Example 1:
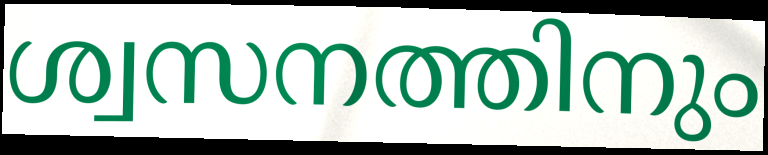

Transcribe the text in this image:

ശ്വസനത്തിനും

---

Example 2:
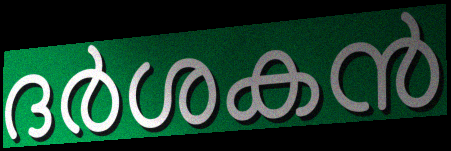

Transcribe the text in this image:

ദർശകൻ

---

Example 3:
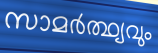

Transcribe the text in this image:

സാമർത്ഥ്യവും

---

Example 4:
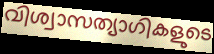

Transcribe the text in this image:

വിശ്വാസത്യാഗികളുടെ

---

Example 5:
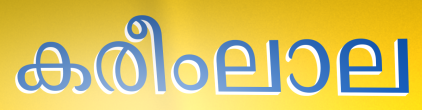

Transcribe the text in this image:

കരീംലാല